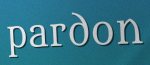
pardon